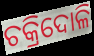
ଚକ୍ରିଦୋଳି